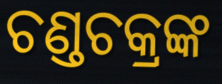
ଚଣ୍ଡଚକ୍ରଙ୍କ